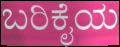
ಬರಿಕೈಯ